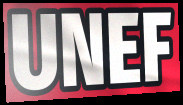
UNEF